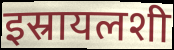
इस्रायलशी